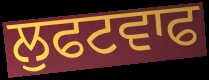
ਲੁਫਟਵਾਫ